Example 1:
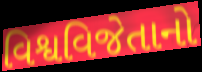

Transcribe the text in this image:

વિશ્વવિજેતાનો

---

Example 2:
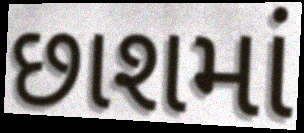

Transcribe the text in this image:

છાશમાં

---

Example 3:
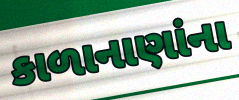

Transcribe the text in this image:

કાળાનાણાંના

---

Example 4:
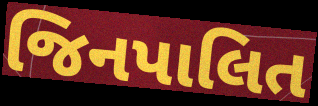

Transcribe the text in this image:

જિનપાલિત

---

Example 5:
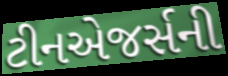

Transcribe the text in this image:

ટીનએજર્સની